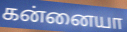
கன்னையா